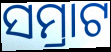
ସମ୍ରାଟ